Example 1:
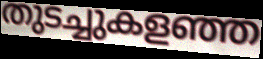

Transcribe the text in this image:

തുടച്ചുകളഞ്ഞ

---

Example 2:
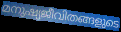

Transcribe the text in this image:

മനുഷ്യജീവിതങ്ങളുടെ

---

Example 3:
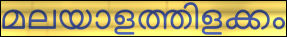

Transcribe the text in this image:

മലയാളത്തിളക്കം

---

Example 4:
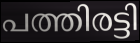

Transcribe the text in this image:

പത്തിരട്ടി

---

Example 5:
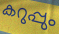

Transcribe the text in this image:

കറുപ്പും